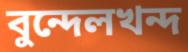
বুন্দেলখন্দ